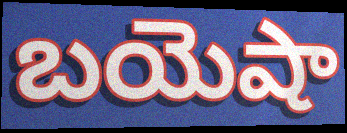
బయెషా